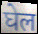
घेल